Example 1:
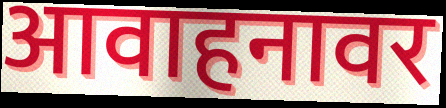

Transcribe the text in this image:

आवाहनावर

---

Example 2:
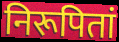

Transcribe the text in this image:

निरूपितां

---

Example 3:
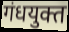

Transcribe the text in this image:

गंधयुक्‍त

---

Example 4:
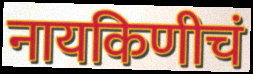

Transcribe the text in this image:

नायकिणीचं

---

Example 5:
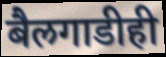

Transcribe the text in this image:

बैलगाडीही